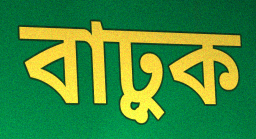
বাঢ়ুক